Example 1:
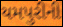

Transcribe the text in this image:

યમપુરીની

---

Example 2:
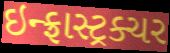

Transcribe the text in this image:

ઇન્ફ્રાસ્ટ્રક્ચર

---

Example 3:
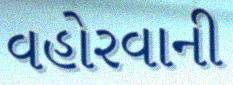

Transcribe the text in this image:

વહોરવાની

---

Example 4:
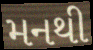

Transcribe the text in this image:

મનથી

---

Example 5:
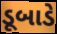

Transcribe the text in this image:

ડૂબાડે